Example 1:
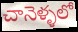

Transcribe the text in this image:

చానెళ్ళలో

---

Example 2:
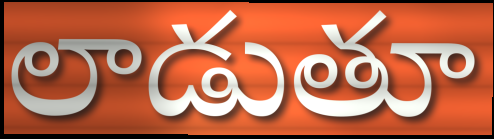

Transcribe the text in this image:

లాడుతూ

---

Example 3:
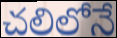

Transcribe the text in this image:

చలిలోనే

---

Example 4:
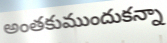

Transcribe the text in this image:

అంతకుముందుకన్నా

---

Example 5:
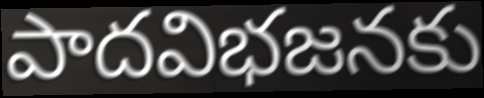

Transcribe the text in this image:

పాదవిభజనకు